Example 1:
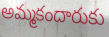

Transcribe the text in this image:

అమ్మకందారుకు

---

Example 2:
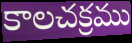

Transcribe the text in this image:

కాలచక్రము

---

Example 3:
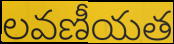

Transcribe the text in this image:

లవణీయత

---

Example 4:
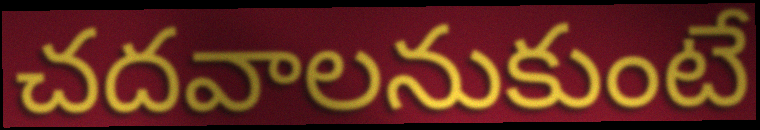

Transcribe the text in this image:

చదవాలనుకుంటే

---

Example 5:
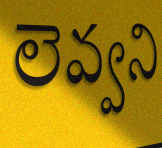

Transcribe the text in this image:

లెవ్వని